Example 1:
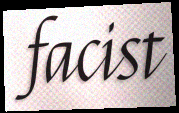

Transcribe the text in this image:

facist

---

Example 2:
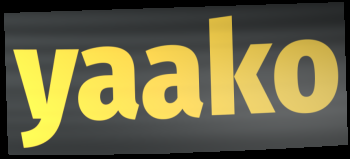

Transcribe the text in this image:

yaako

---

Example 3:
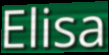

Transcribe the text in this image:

Elisa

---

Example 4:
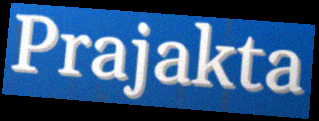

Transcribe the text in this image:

Prajakta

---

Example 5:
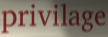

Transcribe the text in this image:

privilage